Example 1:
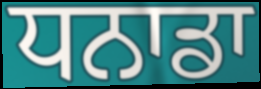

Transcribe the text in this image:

ਧਨਾਡਾ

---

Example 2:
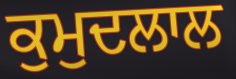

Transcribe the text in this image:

ਕੁਮੁਦਲਾਲ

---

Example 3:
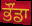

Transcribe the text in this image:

ਭੌਂਡਾ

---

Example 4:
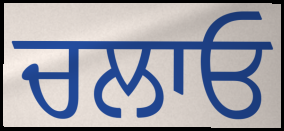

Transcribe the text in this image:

ਚਲਾਓ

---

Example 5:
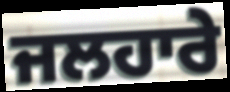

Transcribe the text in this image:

ਜਲਹਾਰੇ